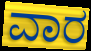
ವಾರ